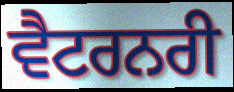
ਵੈਟਰਨਰੀ